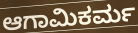
ಆಗಾಮಿಕರ್ಮ